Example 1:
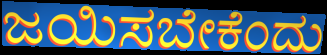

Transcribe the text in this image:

ಜಯಿಸಬೇಕೆಂದು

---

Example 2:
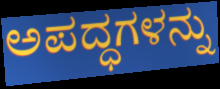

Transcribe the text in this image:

ಅಪದ್ಧಗಳನ್ನು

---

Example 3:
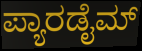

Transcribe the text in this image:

ಪ್ಯಾರಡೈಮ್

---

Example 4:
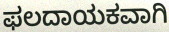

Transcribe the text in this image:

ಫಲದಾಯಕವಾಗಿ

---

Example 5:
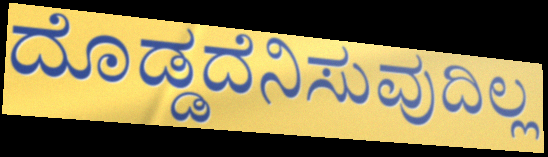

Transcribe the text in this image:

ದೊಡ್ಡದೆನಿಸುವುದಿಲ್ಲ